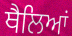
ਥੈਲਿਆਂ